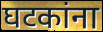
घटकांना